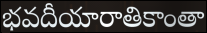
భవదీయారాతికాంతా